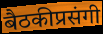
बैठकीप्रसंगी